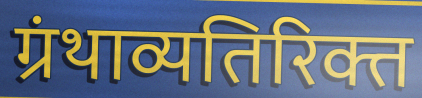
ग्रंथाव्यतिरिक्त